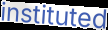
instituted